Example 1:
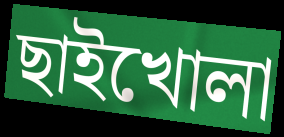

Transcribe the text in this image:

ছাইখোলা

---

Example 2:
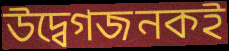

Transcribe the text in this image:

উদ্বেগজনকই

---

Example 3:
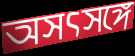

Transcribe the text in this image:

অসৎসঙ্গে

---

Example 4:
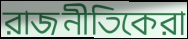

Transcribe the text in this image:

রাজনীতিকেরা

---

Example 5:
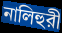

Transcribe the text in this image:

নালিহুরী